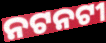
ନଟନଟୀ